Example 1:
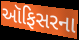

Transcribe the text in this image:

ઑફિસરના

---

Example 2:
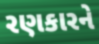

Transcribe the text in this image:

રણકારને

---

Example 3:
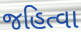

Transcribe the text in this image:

જહિત્વા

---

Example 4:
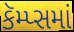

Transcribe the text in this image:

કૅમ્પ્સમાં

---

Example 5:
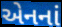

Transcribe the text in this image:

એનનાં